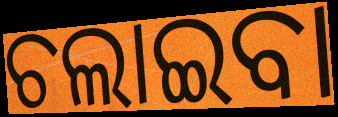
ଚଲାଇବା